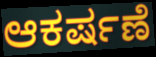
ಆಕರ್ಷಣೆ